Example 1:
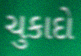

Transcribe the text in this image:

ચુકાદો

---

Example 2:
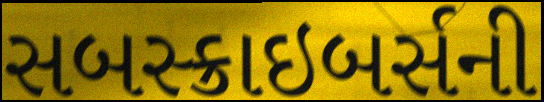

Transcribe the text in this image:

સબસ્ક્રાઇબર્સની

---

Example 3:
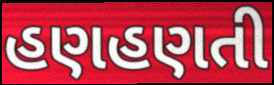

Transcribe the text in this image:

હણહણતી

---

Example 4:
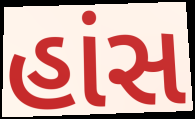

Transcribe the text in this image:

હાંસ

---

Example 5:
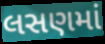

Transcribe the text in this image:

લસણમાં